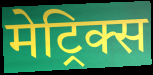
मेट्रिक्‍स